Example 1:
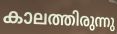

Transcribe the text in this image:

കാലത്തിരുന്നു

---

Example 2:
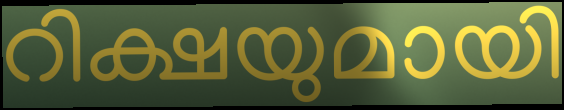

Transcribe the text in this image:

റിക്ഷയുമായി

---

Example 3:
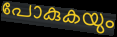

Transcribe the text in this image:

പോകുകയും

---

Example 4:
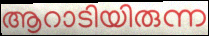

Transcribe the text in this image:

ആറാടിയിരുന്ന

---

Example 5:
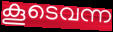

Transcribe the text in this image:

കൂടെവന്ന